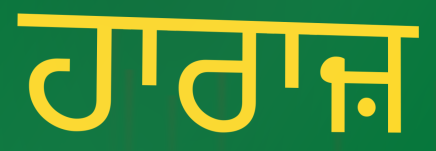
ਹਾਰਾਜ਼